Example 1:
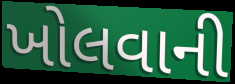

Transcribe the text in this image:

ખોલવાની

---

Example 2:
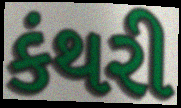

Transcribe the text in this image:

કંથરી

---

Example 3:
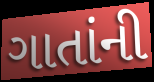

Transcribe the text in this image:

ગાતાંની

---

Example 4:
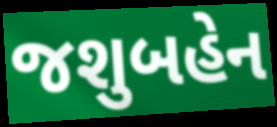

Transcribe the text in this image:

જશુબહેન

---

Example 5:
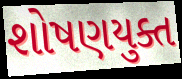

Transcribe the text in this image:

શોષણયુક્ત